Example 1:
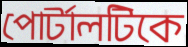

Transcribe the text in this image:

পোর্টালটিকে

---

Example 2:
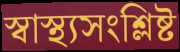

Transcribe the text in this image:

স্বাস্থ্যসংশ্লিষ্ট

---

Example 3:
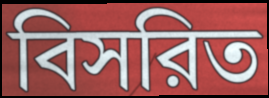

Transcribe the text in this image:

বিসরিত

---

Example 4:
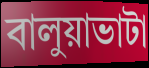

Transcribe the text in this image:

বালুয়াভাটা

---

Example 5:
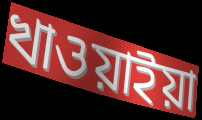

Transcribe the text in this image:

খাওয়াইয়া